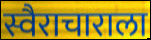
स्वैराचाराला